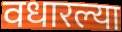
वधारल्या